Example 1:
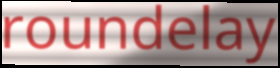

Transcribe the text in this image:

roundelay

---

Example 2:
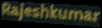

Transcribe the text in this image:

Rajeshkumar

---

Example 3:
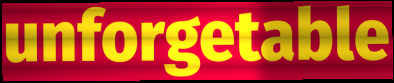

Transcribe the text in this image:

unforgetable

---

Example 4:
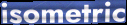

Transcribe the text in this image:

isometric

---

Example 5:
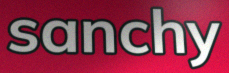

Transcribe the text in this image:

sanchy